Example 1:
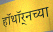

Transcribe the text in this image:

हॉथॉर्नच्या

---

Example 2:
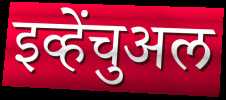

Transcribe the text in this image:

इव्हेंचुअल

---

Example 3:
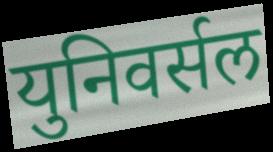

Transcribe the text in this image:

युनिवर्सल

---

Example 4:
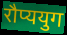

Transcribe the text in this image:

रौप्ययुग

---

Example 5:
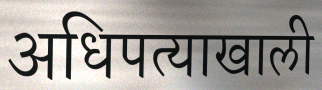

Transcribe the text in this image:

अधिपत्‍याखाली